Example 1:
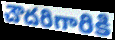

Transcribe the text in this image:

చౌదరిగారికి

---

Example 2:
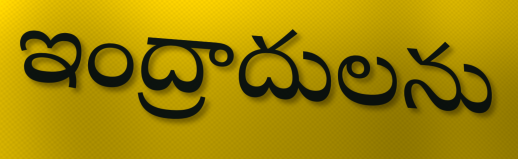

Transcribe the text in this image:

ఇంద్రాదులను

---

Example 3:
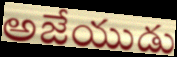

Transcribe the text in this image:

అజేయుడు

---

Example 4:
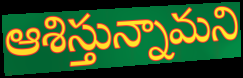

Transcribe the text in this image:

ఆశిస్తున్నామని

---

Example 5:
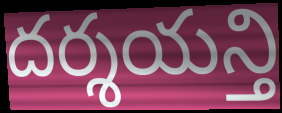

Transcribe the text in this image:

దర్శయన్తి